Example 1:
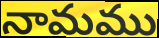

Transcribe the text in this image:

నామము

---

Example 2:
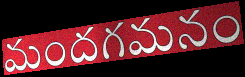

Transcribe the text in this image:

మందగమనం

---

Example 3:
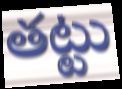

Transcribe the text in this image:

తట్టు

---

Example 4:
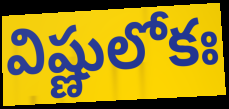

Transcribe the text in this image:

విష్ణులోకః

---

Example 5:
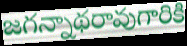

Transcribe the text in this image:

జగన్నాథరావుగారికి